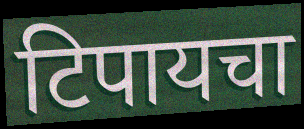
टिपायचा